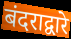
बंदराद्वारे